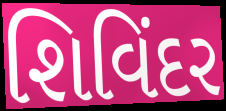
શિવિંદર